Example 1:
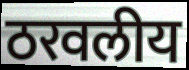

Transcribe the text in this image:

ठरवलीय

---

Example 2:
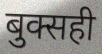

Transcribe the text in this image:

बुक्सही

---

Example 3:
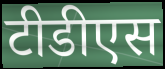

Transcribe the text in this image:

टीडीएस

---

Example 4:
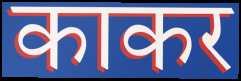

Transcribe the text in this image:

काकर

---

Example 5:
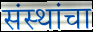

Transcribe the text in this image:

संस्थांचा